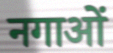
नगाओं